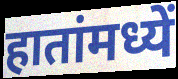
हातांमध्यें